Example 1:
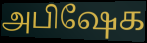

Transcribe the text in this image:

அபிஷேக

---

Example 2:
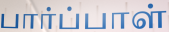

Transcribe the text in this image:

பார்ப்பாள்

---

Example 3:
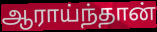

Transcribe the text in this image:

ஆராய்ந்தான்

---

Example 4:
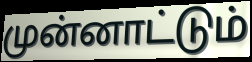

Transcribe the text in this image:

முன்னாட்டும்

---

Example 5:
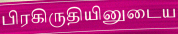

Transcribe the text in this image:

பிரகிருதியினுடைய